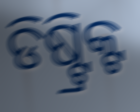
ଡିଷ୍ଟ୍ରିକ୍ଟ